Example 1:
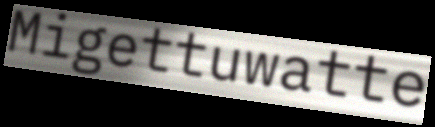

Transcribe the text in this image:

Migettuwatte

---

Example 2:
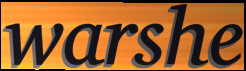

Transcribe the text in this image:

warshe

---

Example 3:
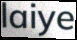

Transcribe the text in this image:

laiye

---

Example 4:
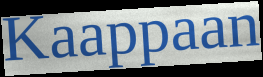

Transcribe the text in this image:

Kaappaan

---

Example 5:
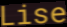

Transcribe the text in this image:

Lise